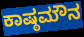
ಕಾಷ್ಠಮೌನ